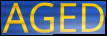
AGED